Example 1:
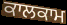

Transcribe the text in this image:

ਕਾਲਕਾਮ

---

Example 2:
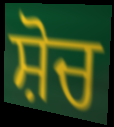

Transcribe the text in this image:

ਸ਼ੋਚ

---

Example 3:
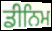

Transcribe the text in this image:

ਡੀਨਿਮ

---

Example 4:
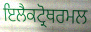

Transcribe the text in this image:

ਇਲੈਕਟ੍ਰੋਥਰਮਲ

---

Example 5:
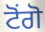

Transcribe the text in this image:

ਟੋਂਗੋ